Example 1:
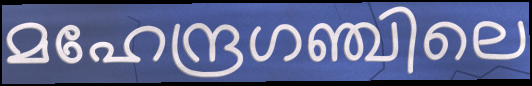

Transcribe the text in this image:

മഹേന്ദ്രഗഞ്ചിലെ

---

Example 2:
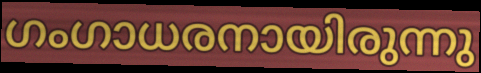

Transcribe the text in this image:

ഗംഗാധരനായിരുന്നു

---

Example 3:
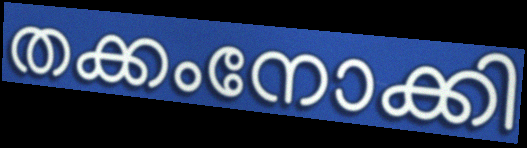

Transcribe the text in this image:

തക്കംനോക്കി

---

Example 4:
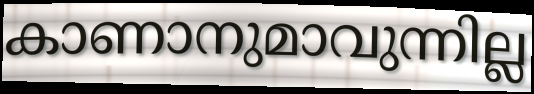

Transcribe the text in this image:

കാണാനുമാവുന്നില്ല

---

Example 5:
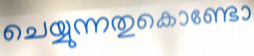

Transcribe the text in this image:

ചെയ്യുന്നതുകൊണ്ടോ